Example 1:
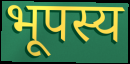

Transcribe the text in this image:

भूपस्य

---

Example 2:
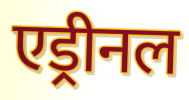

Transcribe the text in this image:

एड्रीनल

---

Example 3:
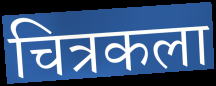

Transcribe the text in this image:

चित्रकला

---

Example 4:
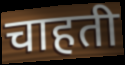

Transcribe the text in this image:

चाहती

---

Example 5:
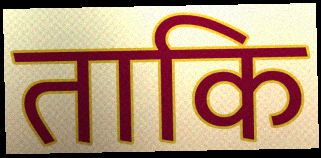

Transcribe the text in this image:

ताकि